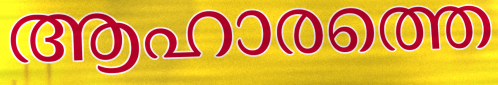
ആഹാരത്തെ